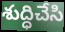
శుద్ధిచేసి